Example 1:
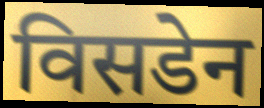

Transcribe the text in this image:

विसडेन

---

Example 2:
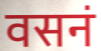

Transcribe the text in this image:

वसनं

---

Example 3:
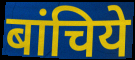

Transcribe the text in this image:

बांचिये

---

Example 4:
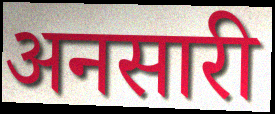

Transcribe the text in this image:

अनसारी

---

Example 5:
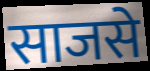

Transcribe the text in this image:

साजसे